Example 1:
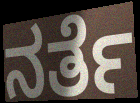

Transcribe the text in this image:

ನರ್ತೆ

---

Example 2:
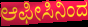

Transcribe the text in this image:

ಆಫೀಸಿನಿಂದ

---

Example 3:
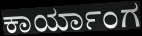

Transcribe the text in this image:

ಕಾರ್ಯಾಂಗ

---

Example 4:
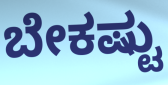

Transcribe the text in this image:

ಬೇಕಷ್ಟು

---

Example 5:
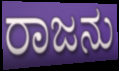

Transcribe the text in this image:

ರಾಜನು